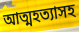
আত্মহত্যাসহ